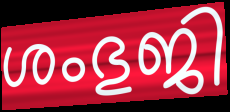
ശംഭുജി